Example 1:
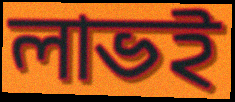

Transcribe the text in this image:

লাভই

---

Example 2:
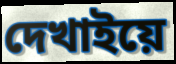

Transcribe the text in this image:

দেখাইয়ে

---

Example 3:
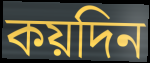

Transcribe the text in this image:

কয়দিন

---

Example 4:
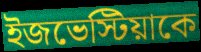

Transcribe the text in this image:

ইজভেস্টিয়াকে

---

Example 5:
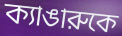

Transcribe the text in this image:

ক্যাঙারুকে